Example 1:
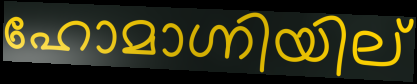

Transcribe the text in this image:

ഹോമാഗ്നിയില്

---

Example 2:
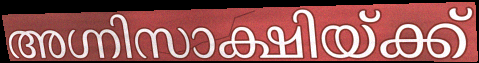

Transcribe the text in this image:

അഗ്നിസാക്ഷിയ്ക്ക്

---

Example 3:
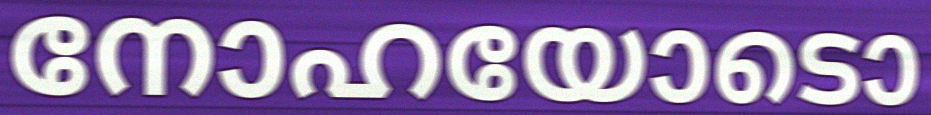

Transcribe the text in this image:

നോഹയോടൊ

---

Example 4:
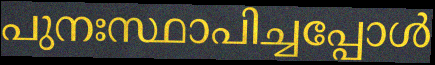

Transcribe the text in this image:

പുനഃസ്ഥാപിച്ചപ്പോൾ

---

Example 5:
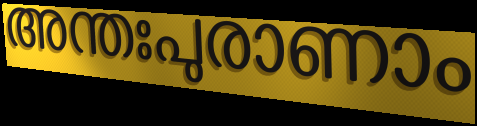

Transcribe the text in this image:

അന്തഃപുരാണാം